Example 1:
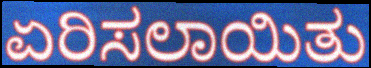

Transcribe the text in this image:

ಏರಿಸಲಾಯಿತು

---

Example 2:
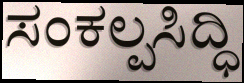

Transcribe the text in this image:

ಸಂಕಲ್ಪಸಿದ್ಧಿ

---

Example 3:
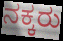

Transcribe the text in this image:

ನಕ್ಕರು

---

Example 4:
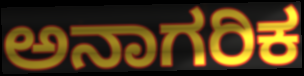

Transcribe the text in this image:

ಅನಾಗರಿಕ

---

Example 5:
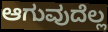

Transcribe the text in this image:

ಆಗುವುದೆಲ್ಲ